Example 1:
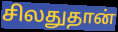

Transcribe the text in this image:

சிலதுதான்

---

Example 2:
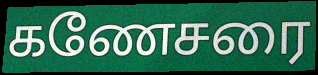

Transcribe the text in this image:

கணேசரை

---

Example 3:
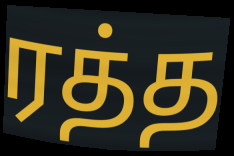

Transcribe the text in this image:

ரத்த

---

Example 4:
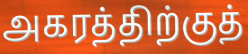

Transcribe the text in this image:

அகரத்திற்குத்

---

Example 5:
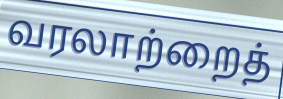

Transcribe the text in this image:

வரலாற்றைத்